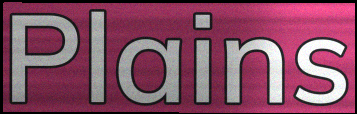
Plains